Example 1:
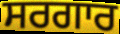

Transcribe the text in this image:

ਸਰਗਾਰ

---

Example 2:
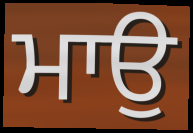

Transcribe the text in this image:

ਮਾਉ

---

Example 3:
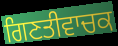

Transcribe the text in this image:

ਗਿਣਤੀਵਾਚਕ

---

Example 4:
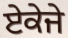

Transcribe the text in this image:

ਏਕੇਜੇ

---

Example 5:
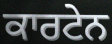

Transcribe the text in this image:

ਕਾਰਟੇਨ